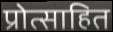
प्रोत्साहित